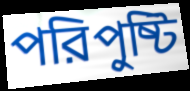
পরিপুষ্টি